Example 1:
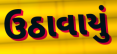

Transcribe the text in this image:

ઉઠાવાયું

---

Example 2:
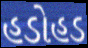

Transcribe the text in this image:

હડોહડ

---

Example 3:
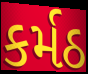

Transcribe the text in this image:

કર્મઠ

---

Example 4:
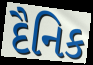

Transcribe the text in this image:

દૈનિક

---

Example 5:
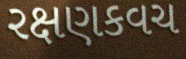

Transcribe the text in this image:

રક્ષણકવચ